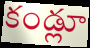
కండ్లూ